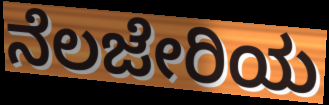
ನೆಲಜೇರಿಯ